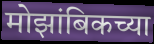
मोझांबिकच्या